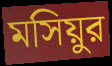
মসিয়ুর